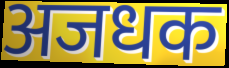
अजधक